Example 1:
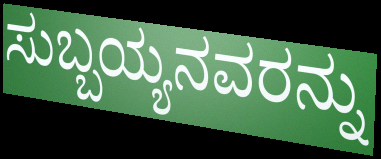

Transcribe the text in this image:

ಸುಬ್ಬಯ್ಯನವರನ್ನು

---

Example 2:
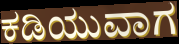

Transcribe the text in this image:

ಕಡಿಯುವಾಗ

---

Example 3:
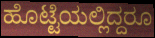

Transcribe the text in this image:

ಹೊಟ್ಟೆಯಲ್ಲಿದ್ದರೂ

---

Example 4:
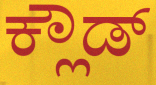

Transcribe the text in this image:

ಕ್ಲೌಡ್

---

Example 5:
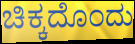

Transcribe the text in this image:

ಚಿಕ್ಕದೊಂದು